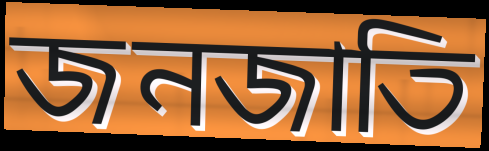
জনজাতি